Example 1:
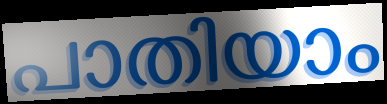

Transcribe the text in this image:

പാതിയാം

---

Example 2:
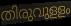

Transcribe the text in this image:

തിരുവുളളം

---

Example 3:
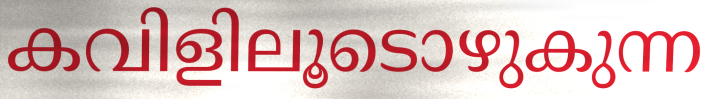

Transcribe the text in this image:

കവിളിലൂടൊഴുകുന്ന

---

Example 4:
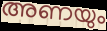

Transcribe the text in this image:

അണയും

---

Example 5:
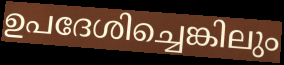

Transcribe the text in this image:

ഉപദേശിച്ചെങ്കിലും